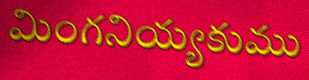
మింగనియ్యకుము